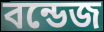
বন্ডেজ